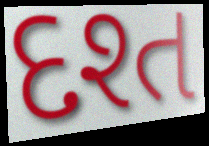
દશ્ત